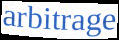
arbitrage